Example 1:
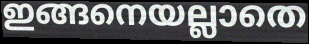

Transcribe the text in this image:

ഇങ്ങനെയല്ലാതെ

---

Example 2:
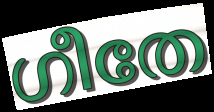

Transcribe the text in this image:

ഗീതേ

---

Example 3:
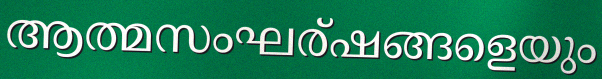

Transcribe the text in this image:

ആത്മസംഘര്ഷങ്ങളെയും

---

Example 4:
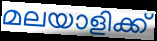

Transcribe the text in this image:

മലയാളിക്ക്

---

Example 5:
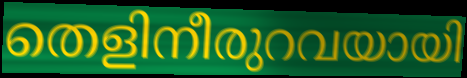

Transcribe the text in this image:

തെളിനീരുറവയായി